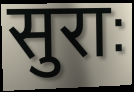
सुराः